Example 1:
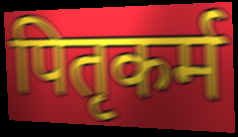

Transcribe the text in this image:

पितृकर्म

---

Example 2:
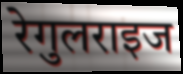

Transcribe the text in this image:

रेगुलराइज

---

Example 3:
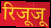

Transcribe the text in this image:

रिजूजू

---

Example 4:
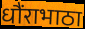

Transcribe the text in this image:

धौंराभाठा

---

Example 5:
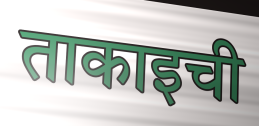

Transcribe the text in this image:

ताकाइची